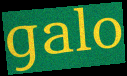
galo